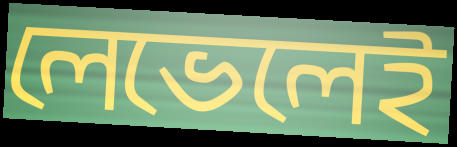
লেভেলেই